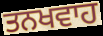
ਤਨਖਵਾਹ